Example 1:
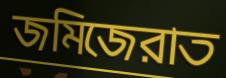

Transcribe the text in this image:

জমিজেরাত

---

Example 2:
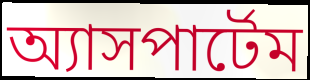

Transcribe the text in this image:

অ্যাসপার্টেম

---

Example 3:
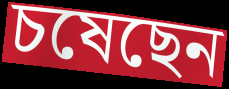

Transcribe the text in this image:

চষেছেন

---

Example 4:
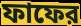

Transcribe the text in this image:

ফাফের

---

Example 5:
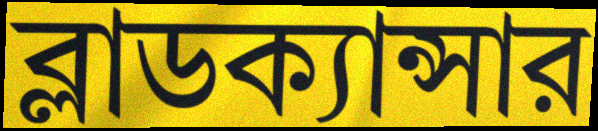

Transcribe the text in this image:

ব্লাডক্যান্সার